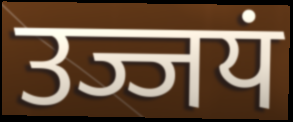
उज्जयं